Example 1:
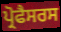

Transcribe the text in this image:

ਪ੍ਰੋਫੈਸਰਸ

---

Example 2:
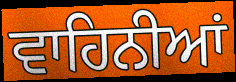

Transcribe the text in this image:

ਵਾਹਿਨੀਆਂ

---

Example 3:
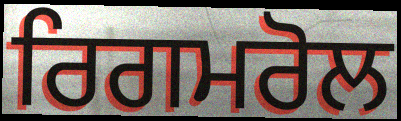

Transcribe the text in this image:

ਰਿਗਮਰੋਲ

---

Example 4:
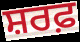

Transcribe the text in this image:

ਸ਼ਰਫ਼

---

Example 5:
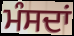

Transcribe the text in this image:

ਮੰਸਦਾਂ